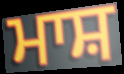
ਮਾਸ਼